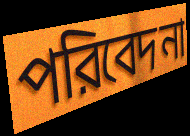
পরিবেদনা